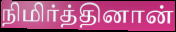
நிமிர்த்தினான்